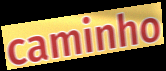
caminho